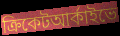
ক্রিকেটআর্কাইভে